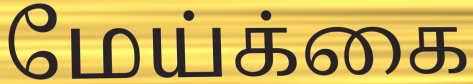
மேய்க்கை